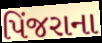
પિંજરાના